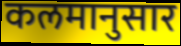
कलमानुसार